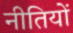
नीतियों